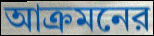
আক্রমনের